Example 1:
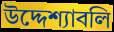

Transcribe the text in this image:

উদ্দেশ্যাবলি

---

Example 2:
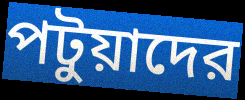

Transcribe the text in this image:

পটুয়াদের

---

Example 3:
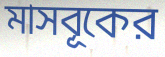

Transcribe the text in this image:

মাসবূকের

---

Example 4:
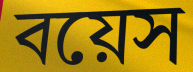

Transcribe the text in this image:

বয়েস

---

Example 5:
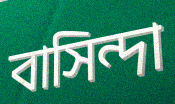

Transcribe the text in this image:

বাসিন্দা